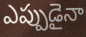
ఎప్పుడైనా